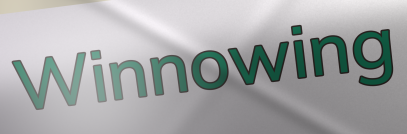
Winnowing